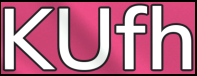
KUfh